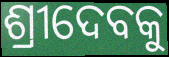
ଶ୍ରୀଦେବକୁ